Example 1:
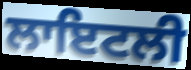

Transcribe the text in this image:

ਲਾਇਟਲੀ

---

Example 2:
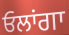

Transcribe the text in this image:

ਓਲਾਂਗਾ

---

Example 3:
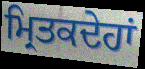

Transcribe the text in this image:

ਮ੍ਰਿਤਕਦੇਹਾਂ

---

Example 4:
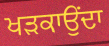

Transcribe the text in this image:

ਖੜਕਾਉਂਦਾ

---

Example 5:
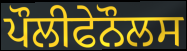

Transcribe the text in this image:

ਪੌਲੀਫੇਨੌਲਸ